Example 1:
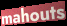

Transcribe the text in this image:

mahouts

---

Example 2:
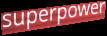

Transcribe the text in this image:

superpower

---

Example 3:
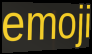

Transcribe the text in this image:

emoji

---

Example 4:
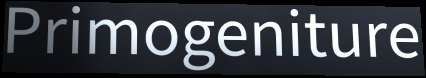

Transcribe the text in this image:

Primogeniture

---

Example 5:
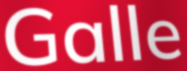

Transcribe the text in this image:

Galle